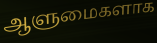
ஆளுமைகளாக